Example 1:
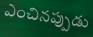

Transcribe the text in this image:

ఎంచినప్పుడు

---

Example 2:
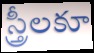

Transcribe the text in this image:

స్త్రీలకూ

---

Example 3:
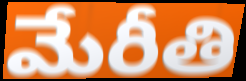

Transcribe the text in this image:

మేరీతి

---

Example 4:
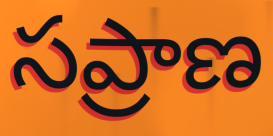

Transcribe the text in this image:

సప్రాణ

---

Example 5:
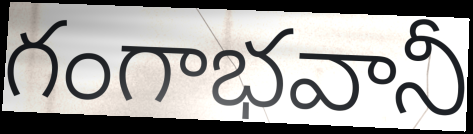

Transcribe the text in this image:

గంగాభవానీ